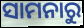
ସାମନାରୁ